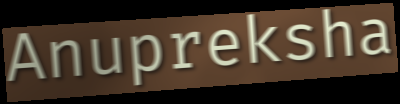
Anupreksha